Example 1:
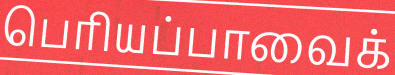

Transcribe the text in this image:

பெரியப்பாவைக்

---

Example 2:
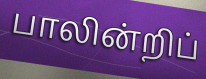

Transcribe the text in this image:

பாலின்றிப்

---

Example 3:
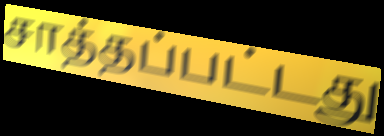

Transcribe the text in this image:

சாத்தப்பட்டது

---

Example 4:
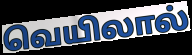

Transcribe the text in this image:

வெயிலால்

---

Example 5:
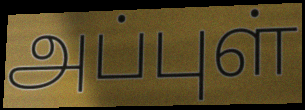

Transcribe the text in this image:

அப்புள்